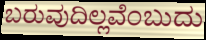
ಬರುವುದಿಲ್ಲವೆಂಬುದು